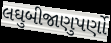
લઘુબીજાણુપર્ણો